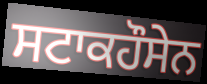
ਸਟਾਕਹੌਸੇਨ